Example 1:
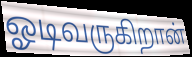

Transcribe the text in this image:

ஓடிவருகிறான்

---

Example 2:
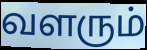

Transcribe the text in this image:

வளரும்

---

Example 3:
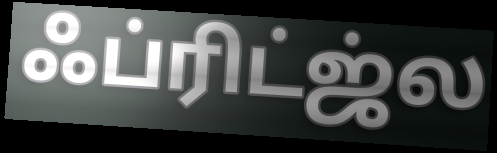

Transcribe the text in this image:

ஃப்ரிட்ஜ்ல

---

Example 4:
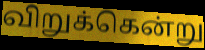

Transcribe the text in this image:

விறுக்கென்று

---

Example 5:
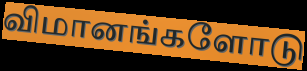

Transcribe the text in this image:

விமானங்களோடு